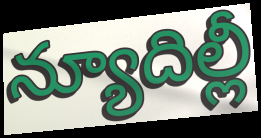
న్యూదిల్లీ